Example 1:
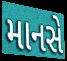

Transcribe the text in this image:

માનસે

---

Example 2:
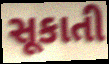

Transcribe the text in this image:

સૂકાતી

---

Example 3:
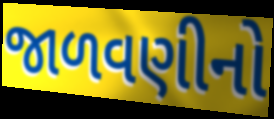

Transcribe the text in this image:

જાળવણીનો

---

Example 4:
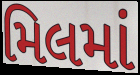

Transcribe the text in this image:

મિલમાં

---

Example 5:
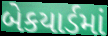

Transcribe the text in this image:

બેકયાર્ડમાં